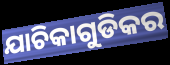
ଯାଚିକାଗୁଡିକର